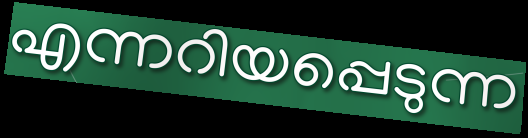
എന്നറിയപ്പെടുന്ന